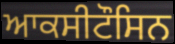
ਆਕਸੀਟੌਸਿਨ